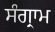
ਸੰਗ੍ਰਾਮ